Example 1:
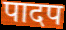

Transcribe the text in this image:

पादप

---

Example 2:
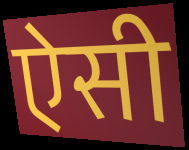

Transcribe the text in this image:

ऐसी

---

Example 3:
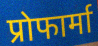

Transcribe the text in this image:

प्रोफार्मा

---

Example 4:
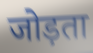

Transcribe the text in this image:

जोड़ता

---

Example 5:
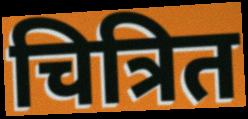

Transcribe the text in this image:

चित्रित